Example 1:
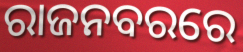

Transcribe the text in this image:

ରାଜନବରରେ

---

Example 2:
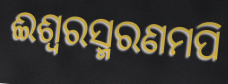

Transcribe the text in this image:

ଈଶ୍ଵରସ୍ମରଣମପି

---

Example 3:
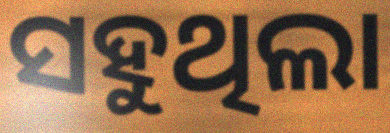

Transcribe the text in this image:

ସହୁଥିଲା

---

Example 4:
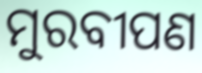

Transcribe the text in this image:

ମୁରବୀପଣ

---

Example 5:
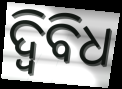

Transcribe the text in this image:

ଦ୍ୱିବିଧ